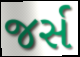
જર્સ